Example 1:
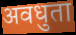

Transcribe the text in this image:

अवधुता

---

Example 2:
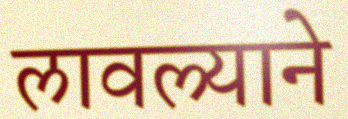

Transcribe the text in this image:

लावल्याने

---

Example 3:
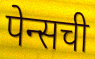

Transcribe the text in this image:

पेन्सची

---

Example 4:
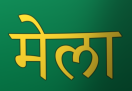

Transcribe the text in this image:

मेला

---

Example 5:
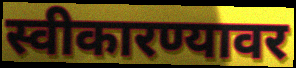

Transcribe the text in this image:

स्वीकारण्यावर